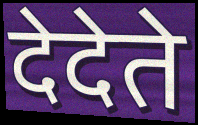
देदेते